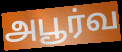
அபூர்வ